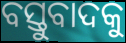
ବସ୍ତୁବାଦକୁ